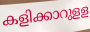
കളിക്കാറുളള